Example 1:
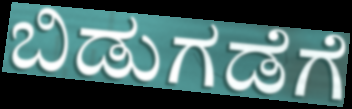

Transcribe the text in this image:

ಬಿಡುಗಡೆಗೆ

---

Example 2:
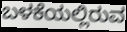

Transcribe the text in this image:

ಬಳಕೆಯಲ್ಲಿರುವ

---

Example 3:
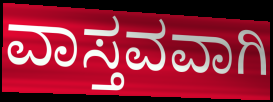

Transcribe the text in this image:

ವಾಸ್ತವವಾಗಿ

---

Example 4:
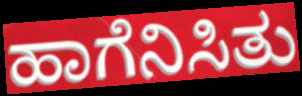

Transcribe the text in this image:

ಹಾಗೆನಿಸಿತು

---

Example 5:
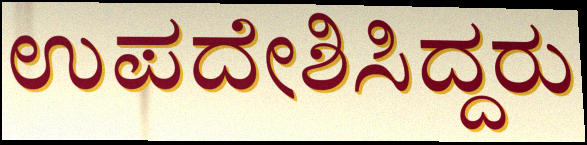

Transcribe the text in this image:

ಉಪದೇಶಿಸಿದ್ದರು